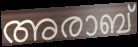
അരാബ്